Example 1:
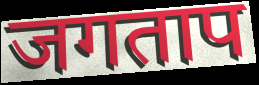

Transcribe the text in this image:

जगताप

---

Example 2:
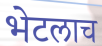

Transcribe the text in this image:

भेटलाच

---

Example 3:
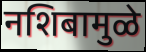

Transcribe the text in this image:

नशिबामुळे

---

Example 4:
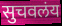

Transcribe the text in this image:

सुचवलंय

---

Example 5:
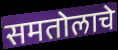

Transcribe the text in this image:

समतोलाचे